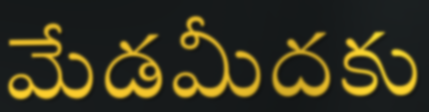
మేడమీదకు